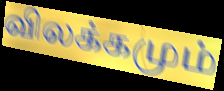
விலக்கமும்